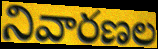
నివారణల